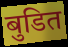
बुडित